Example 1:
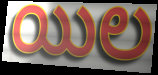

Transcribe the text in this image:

యిల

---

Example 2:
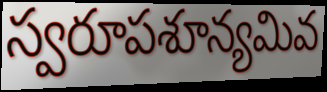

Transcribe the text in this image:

స్వరూపశూన్యమివ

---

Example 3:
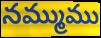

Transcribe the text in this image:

నమ్ముము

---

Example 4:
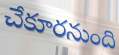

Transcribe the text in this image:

చేకూరనుంది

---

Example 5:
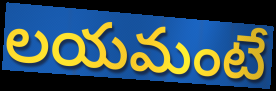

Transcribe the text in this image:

లయమంటే